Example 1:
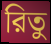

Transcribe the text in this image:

রিতু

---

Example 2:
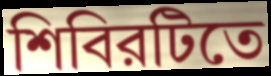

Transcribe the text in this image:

শিবিরটিতে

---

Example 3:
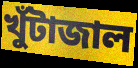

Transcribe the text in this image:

খুঁটাজাল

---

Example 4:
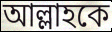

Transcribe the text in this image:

আল্লাহকে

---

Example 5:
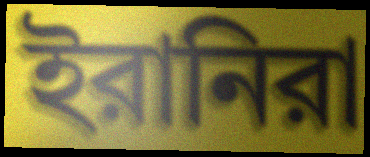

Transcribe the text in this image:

ইরানিরা